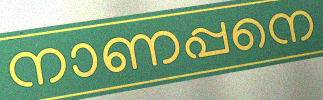
നാണപ്പനെ